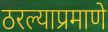
ठरल्याप्रमाणे